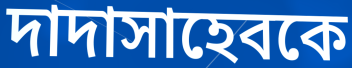
দাদাসাহেবকে